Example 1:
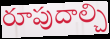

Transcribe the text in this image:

రూపుదాల్చి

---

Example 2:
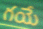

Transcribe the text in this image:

గయే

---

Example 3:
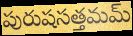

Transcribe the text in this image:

పురుషసత్తమమ్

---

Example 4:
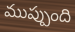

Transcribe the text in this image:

ముప్పుంది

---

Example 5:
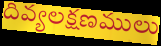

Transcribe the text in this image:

దివ్యలక్షణములు